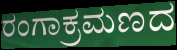
ರಂಗಾಕ್ರಮಣದ